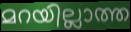
മറയില്ലാത്ത